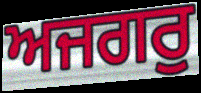
ਅਜਗਰੁ